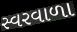
સ્વરવાળા